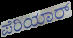
ಪೆರಿಯಾರ್